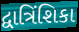
દ્વાત્રિંશિકા